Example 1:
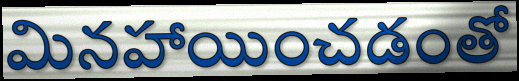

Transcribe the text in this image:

మినహాయించడంతో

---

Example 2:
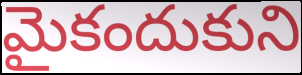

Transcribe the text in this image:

మైకందుకుని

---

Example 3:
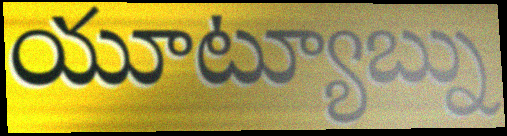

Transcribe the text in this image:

యూట్యూబ్ను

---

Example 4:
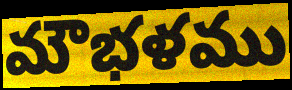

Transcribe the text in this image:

మౌభళము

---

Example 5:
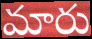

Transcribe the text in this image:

మారు